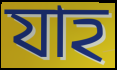
যাহ